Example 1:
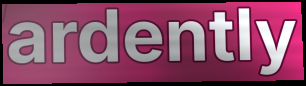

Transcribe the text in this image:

ardently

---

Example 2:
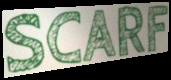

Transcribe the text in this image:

SCARF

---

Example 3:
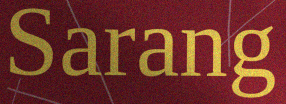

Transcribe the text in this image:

Sarang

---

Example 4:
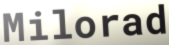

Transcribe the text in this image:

Milorad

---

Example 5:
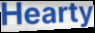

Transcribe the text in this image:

Hearty